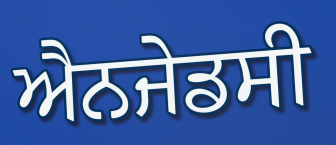
ਐਨਜੇਡਸੀ